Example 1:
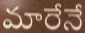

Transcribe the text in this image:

మారేనే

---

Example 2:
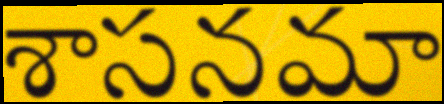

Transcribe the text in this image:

శాసనమా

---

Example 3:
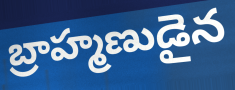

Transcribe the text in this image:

బ్రాహ్మణుడైన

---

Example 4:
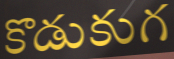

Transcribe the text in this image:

కొడుకుగ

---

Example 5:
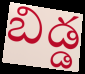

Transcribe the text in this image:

బిడ్డ